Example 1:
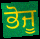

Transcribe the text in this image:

ਭੋਜੂ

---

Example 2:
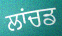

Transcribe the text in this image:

ਲਾਂਚਡ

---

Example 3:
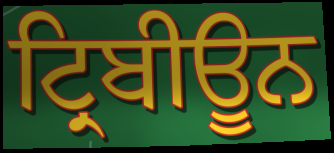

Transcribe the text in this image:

ਟ੍ਰਿਬੀਊਨ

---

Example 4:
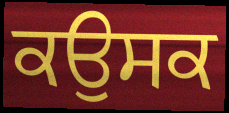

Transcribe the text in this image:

ਕਉਸਕ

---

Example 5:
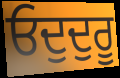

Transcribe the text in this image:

ਓਦੁਦੁਰੂ